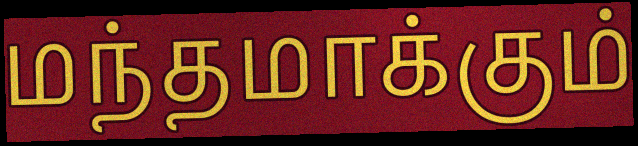
மந்தமாக்கும்